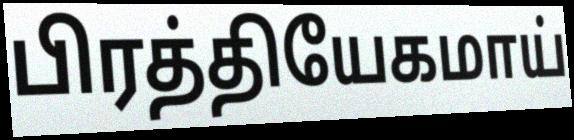
பிரத்தியேகமாய்